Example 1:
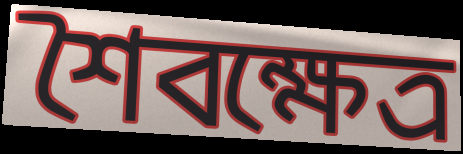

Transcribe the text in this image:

শৈবক্ষেত্র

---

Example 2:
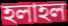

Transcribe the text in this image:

হলাহল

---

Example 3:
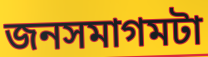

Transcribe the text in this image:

জনসমাগমটা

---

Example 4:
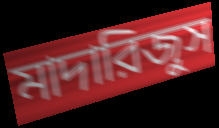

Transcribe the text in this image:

মাদারিজুস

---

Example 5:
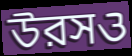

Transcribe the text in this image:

উরসও